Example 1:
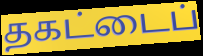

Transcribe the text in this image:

தகட்டைப்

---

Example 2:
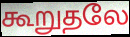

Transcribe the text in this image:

கூறுதலே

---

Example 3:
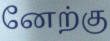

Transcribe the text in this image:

னேற்கு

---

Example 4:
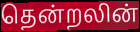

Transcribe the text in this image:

தென்றலின்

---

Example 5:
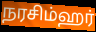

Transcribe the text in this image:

நரசிம்ஹர்